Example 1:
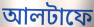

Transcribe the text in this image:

আলটাফে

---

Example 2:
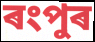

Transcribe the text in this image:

ৰংপুৰ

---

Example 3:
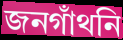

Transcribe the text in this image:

জনগাঁথনি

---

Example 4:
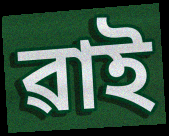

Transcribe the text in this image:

ৱাই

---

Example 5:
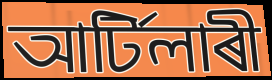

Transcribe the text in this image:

আৰ্টিলাৰী